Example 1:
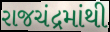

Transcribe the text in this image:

રાજચંદ્રમાંથી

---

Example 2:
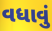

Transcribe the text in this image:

વધાવું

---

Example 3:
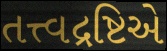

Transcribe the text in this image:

તત્ત્વદ્રષ્ટિએ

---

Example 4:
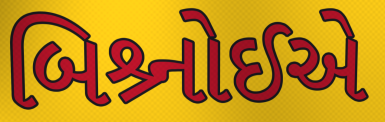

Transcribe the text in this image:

બિશ્ર્નોઈએ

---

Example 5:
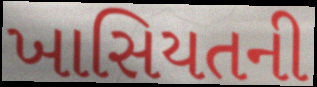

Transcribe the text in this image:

ખાસિયતની